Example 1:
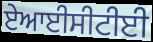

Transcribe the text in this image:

ਏਆਈਸੀਟੀਈ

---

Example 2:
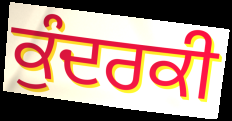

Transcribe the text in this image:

ਕੁੰਦਰਕੀ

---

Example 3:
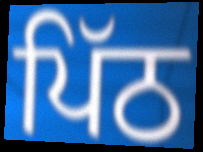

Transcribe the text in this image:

ਪਿੱਠ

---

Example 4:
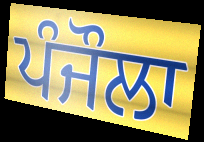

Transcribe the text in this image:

ਪੰਜੌਲਾ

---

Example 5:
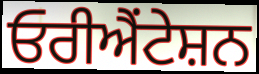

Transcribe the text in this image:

ਓਰੀਐਂਟੇਸ਼ਨ